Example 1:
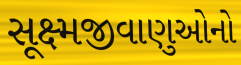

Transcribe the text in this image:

સૂક્ષ્મજીવાણુઓનો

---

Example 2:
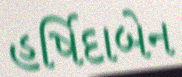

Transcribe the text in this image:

હર્ષિદાબેન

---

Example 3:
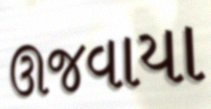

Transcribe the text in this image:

ઊજવાયા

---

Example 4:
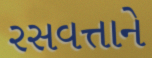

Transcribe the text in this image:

રસવત્તાને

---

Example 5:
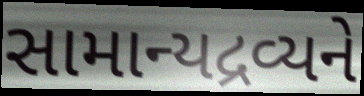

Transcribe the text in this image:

સામાન્યદ્રવ્યને